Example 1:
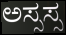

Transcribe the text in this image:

ಅಸ್ಸಸ್ಸ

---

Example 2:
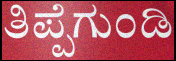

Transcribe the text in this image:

ತಿಪ್ಪೆಗುಂಡಿ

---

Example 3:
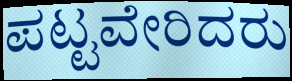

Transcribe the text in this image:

ಪಟ್ಟವೇರಿದರು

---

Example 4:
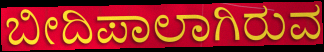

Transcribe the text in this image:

ಬೀದಿಪಾಲಾಗಿರುವ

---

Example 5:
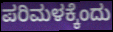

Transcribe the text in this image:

ಪರಿಮಳಕ್ಕೆಂದು